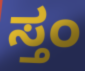
ಸ್ತಂ